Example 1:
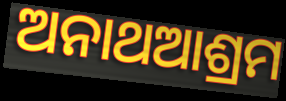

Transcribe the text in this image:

ଅନାଥଆଶ୍ରମ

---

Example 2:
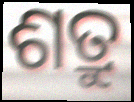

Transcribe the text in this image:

ଶତ୍ରୁ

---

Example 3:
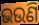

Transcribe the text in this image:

ଭଉଣି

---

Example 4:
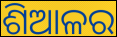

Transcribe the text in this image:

ଶିଆଳର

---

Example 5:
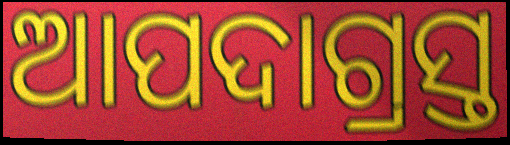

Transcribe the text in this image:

ଆପଦାଗ୍ରସ୍ତ